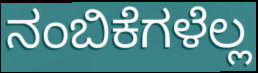
ನಂಬಿಕೆಗಳೆಲ್ಲ